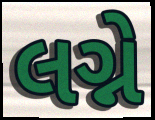
લગ્ને